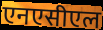
एनएसीएल